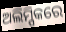
ଅଲିମ୍ପିକରେ